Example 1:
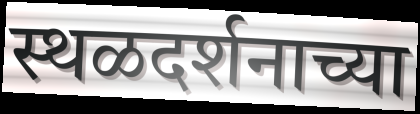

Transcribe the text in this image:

स्थळदर्शनाच्या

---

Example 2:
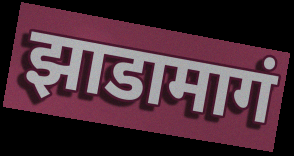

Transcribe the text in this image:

झाडामागं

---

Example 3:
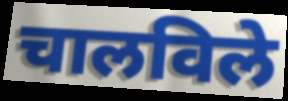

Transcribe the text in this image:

चालविले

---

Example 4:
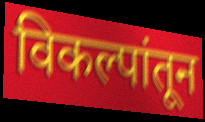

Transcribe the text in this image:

विकल्पांतून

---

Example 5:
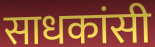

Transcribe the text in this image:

साधकांसी